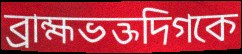
ব্রাহ্মভক্তদিগকে